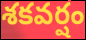
శకవర్షం